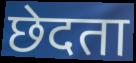
छेदता